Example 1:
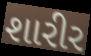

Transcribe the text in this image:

શારીર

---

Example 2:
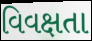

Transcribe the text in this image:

વિવક્ષતા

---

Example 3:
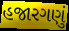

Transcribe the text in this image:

હજારગણું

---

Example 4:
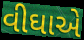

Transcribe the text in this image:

વીઘાએ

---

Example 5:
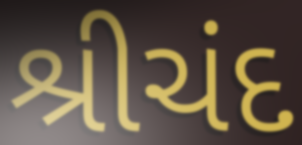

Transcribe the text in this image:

શ્રીચંદ